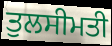
ਤੁਲਸੀਮਤੀ